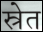
स्रेत